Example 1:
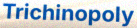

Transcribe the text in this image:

Trichinopoly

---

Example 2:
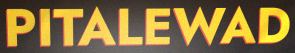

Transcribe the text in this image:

PITALEWAD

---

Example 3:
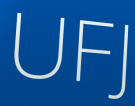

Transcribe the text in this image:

UFJ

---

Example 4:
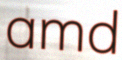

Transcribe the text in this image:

amd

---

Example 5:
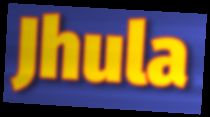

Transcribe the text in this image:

Jhula